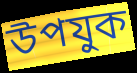
উপযুক